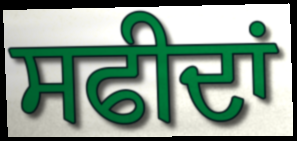
ਸਫੀਦਾਂ